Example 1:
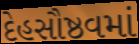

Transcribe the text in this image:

દેહસૌષ્ઠવમાં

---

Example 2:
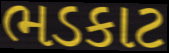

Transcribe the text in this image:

ભડકાટ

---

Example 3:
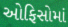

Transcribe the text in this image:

ઓફિસોમાં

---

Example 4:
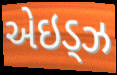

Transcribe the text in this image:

એઇડ્ઝ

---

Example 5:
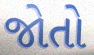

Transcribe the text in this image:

જોતો